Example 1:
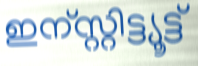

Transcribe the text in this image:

ഇന്സ്റ്റിട്ട്യൂട്ട്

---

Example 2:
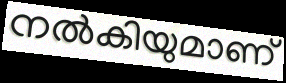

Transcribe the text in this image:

നൽകിയുമാണ്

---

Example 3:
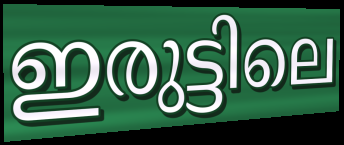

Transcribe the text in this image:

ഇരുട്ടിലെ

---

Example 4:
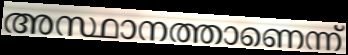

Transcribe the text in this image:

അസ്ഥാനത്താണെന്ന്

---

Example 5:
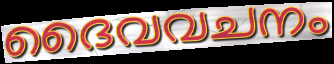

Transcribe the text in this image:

ദൈവവചനം